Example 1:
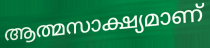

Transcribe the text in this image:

ആത്മസാക്ഷ്യമാണ്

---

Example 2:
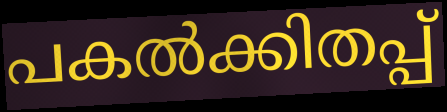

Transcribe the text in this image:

പകൽക്കിതപ്പ്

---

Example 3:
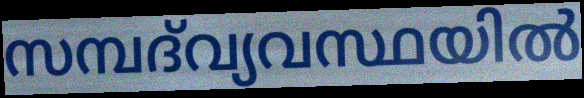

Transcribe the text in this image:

സമ്പദ്‌വ്യവസ്ഥയിൽ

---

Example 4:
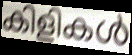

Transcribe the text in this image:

കിളികൾ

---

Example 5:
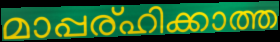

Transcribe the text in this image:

മാപ്പര്ഹിക്കാത്ത